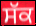
ਸੱਕ